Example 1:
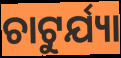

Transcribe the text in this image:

ଚାଟୁର୍ଯ୍ୟା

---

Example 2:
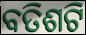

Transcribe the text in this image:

ବତିଶଟି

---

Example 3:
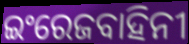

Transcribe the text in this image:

ଇଂରେଜବାହିନୀ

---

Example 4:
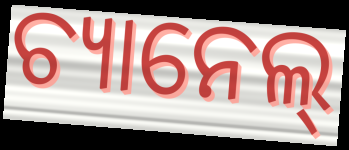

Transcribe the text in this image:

ଚ୍ୟାନେଲ୍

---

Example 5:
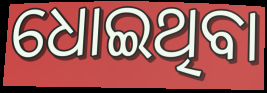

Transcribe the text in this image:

ଧୋଇଥିବା